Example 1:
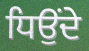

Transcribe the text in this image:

ਧਿਉਂਦੇ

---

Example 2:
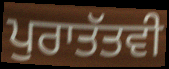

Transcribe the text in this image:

ਪੁਰਾਤੱਤਵੀ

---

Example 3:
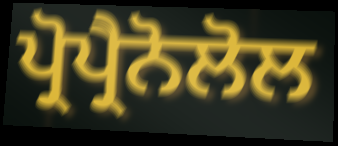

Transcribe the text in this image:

ਪ੍ਰੋਪ੍ਰੈਨੋਲੋਲ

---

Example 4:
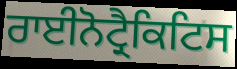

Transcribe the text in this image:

ਰਾਈਨੋਟ੍ਰੈਕਿਟਿਸ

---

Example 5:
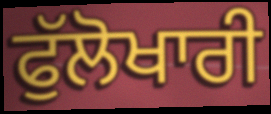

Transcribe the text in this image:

ਫੁੱਲੋਖਾਰੀ